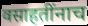
वसाहतींनाच